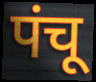
पंचू